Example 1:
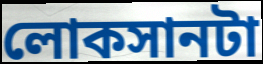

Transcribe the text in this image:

লোকসানটা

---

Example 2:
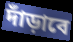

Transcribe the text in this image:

দাঁড়াবে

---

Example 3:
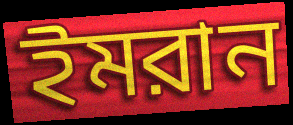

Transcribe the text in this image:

ইমরান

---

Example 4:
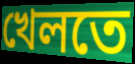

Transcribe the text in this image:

খেলতে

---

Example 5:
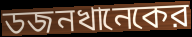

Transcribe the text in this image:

ডজনখানেকের